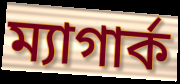
ম্যাগার্ক